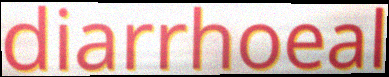
diarrhoeal